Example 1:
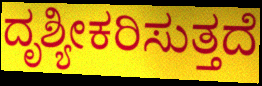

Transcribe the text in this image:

ದೃಶ್ಯೀಕರಿಸುತ್ತದೆ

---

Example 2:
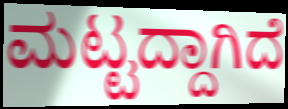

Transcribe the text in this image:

ಮಟ್ಟದ್ದಾಗಿದೆ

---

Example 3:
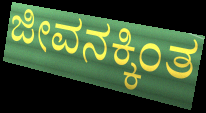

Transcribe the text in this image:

ಜೀವನಕ್ಕಿಂತ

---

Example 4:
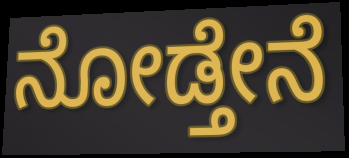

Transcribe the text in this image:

ನೋಡ್ತೇನೆ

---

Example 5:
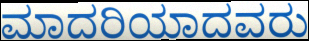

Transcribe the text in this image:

ಮಾದರಿಯಾದವರು